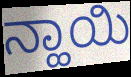
ನ್ಹಾಯಿ